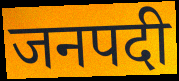
जनपदी